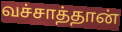
வச்சாத்தான்